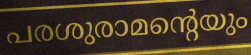
പരശുരാമന്റെയും